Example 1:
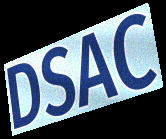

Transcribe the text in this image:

DSAC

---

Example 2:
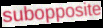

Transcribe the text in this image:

subopposite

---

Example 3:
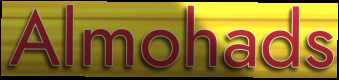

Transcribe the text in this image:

Almohads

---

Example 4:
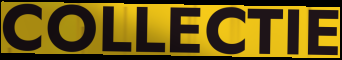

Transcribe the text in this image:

COLLECTIE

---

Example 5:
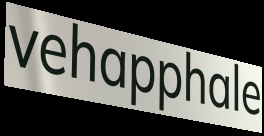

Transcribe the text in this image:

vehapphale